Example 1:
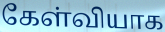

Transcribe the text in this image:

கேள்வியாக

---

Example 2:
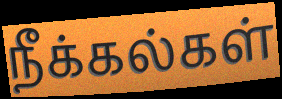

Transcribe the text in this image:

நீக்கல்கள்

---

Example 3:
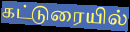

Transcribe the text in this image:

கட்டுரையில்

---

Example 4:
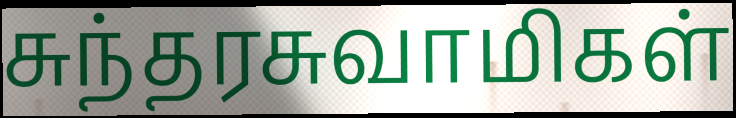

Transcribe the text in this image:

சுந்தரசுவாமிகள்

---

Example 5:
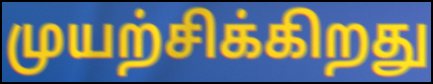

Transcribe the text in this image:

முயற்சிக்கிறது